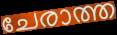
ചേരാത്ത